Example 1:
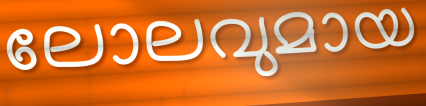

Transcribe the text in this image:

ലോലവുമായ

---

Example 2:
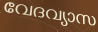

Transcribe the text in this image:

വേദവ്യാസ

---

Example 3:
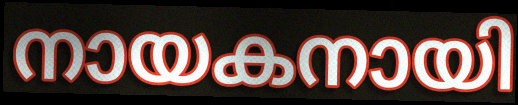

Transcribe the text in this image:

നായകനായി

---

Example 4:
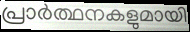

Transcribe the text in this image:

പ്രാർത്ഥനകളുമായി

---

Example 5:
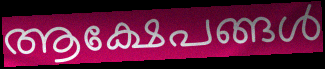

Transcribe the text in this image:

ആക്ഷേപങ്ങൾ